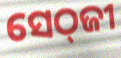
ସେଠ୍‌ଜୀ